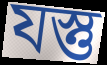
যস্তু